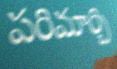
పరిమార్చి